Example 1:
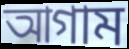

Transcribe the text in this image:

আগাম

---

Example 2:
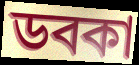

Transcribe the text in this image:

ডবকা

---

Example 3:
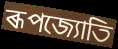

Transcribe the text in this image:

ৰূপজ্যোতি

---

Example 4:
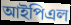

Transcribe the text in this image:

আইপিএল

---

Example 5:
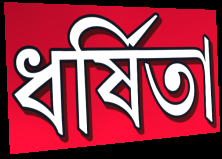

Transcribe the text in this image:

ধৰ্ষিতা